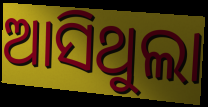
ଆସିଥୁଲା